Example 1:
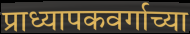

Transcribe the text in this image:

प्राध्यापकवर्गाच्या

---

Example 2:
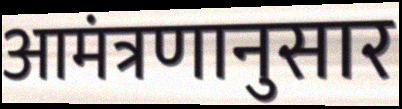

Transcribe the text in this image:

आमंत्रणानुसार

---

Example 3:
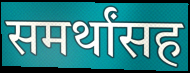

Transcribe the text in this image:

समर्थांसह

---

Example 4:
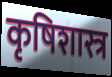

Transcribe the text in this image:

कृषिशास्त्र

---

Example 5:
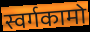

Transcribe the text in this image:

स्वर्गकामो